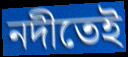
নদীতেই